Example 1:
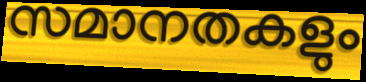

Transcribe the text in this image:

സമാനതകളും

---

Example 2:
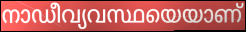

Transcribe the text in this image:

നാഡീവ്യവസ്ഥയെയാണ്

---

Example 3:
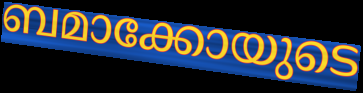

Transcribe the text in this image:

ബമാക്കോയുടെ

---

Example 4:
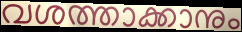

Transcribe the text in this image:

വശത്താക്കാനും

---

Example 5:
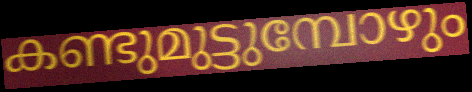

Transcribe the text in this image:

കണ്ടുമുട്ടുമ്പോഴും